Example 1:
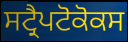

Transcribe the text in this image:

ਸਟ੍ਰੈਪਟੋਕੋਕਸ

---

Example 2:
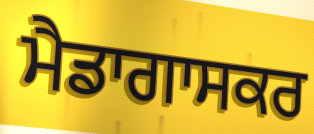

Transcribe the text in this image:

ਮੈਡਾਗਾਸਕਰ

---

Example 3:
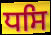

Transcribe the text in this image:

ਧਸਿ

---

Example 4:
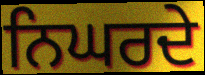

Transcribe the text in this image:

ਨਿਘਰਦੇ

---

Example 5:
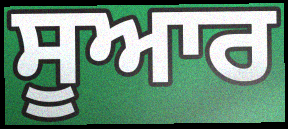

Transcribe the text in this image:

ਸੂਆਰ